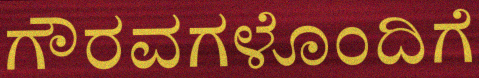
ಗೌರವಗಳೊಂದಿಗೆ